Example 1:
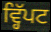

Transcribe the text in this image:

ਵ੍ਹਿੱਪਟ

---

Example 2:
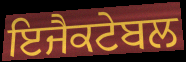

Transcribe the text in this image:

ਇਜੈਕਟੇਬਲ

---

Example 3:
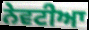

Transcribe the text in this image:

ਨੇਵਟੀਆ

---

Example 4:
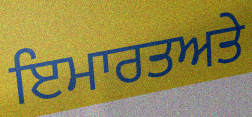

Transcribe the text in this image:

ਇਮਾਰਤਅਤੇ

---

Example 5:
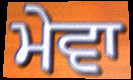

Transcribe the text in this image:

ਮੇਵਾ